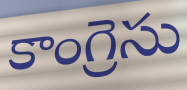
కాంగ్రెసు